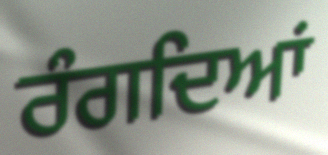
ਰੰਗਦਿਆਂ